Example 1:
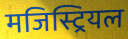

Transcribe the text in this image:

मजिस्ट्रियल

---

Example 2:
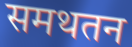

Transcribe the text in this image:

समथतन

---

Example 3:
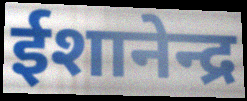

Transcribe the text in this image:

ईशानेन्द्र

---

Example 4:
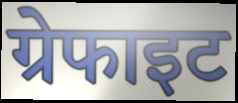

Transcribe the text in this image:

ग्रेफाइट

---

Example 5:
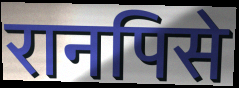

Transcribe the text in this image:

रानपिसे